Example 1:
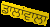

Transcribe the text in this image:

ਡਾਲਾਂਵਾਲਾ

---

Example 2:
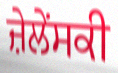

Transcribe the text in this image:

ਜ਼ੇਲੇਂਸਕੀ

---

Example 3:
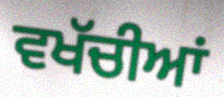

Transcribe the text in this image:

ਵਖੱਚੀਆਂ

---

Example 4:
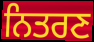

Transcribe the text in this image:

ਨਿਤਰਣ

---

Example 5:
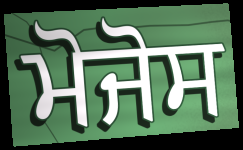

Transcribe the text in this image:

ਮੋਜੋਸ